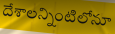
దేశాలన్నింటిలోనూ